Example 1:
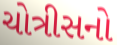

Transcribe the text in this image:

ચોત્રીસનો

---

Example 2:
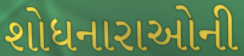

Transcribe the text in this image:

શોધનારાઓની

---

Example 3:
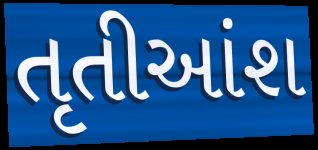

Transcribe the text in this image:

તૃતીઆંશ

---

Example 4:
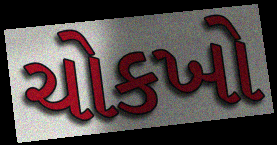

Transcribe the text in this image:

ચોકખો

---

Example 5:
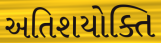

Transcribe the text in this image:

અતિશયોક્તિ